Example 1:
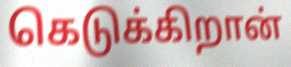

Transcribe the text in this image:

கெடுக்கிறான்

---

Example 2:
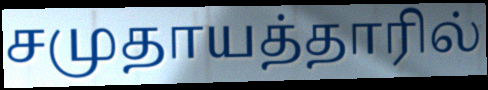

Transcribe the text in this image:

சமுதாயத்தாரில்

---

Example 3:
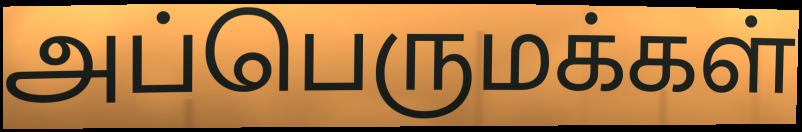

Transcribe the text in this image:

அப்பெருமக்கள்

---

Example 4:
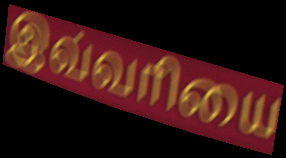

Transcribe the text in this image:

இவ்வரியை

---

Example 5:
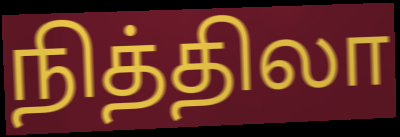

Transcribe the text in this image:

நித்திலா